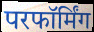
परफॉर्मिंग